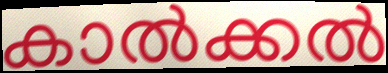
കാൽക്കൽ